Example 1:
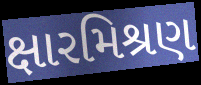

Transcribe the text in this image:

ક્ષારમિશ્રણ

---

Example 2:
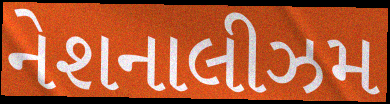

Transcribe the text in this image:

નેશનાલીઝમ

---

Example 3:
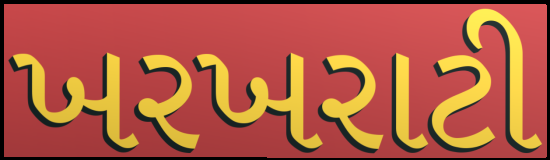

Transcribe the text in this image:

ખરખરાટી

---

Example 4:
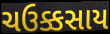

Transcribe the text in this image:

ચઉક્કસાય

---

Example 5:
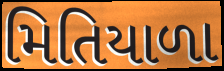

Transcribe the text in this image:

મિતિયાળા